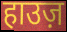
हाउज़